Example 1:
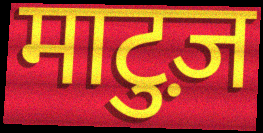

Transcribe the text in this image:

माटुज़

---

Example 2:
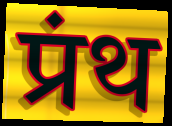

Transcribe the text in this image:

प्रंथ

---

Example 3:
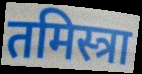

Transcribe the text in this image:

तमिस्त्रा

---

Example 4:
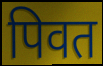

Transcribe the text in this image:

पिवत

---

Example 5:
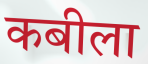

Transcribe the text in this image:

कबीला